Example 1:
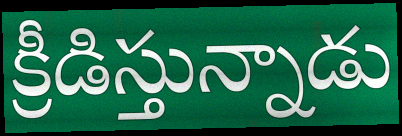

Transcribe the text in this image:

క్రీడిస్తున్నాడు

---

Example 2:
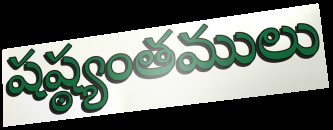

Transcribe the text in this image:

షష్ఠ్యంతములు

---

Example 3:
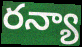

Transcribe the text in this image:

రన్యా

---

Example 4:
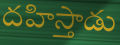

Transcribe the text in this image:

దహిస్తాడు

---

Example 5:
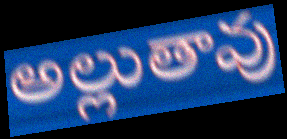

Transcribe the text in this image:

అల్లుతావు